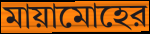
মায়ামোহের